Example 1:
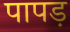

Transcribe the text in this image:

पापड़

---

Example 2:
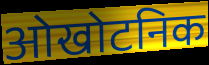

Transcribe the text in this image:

ओखोटनिक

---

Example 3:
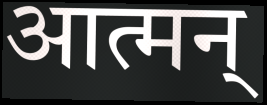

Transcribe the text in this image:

आत्मन्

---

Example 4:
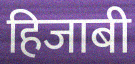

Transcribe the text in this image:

हिजाबी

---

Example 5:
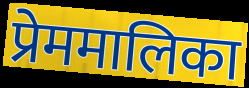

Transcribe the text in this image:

प्रेममालिका